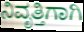
ನಿವೃತ್ತಿಗಾಗಿ